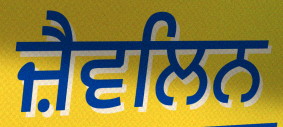
ਜ਼ੈਵਲਿਨ